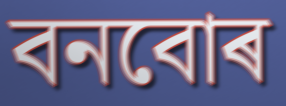
বনবোৰ